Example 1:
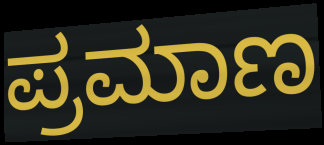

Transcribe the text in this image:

ಪ್ರಮಾಣ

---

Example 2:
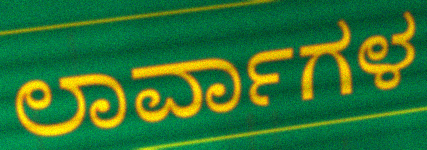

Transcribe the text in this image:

ಲಾರ್ವಾಗಳ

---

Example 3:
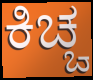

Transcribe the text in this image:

ಕಿಚ್ಚ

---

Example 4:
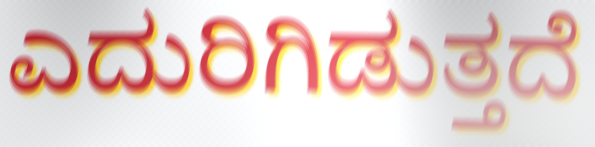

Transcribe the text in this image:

ಎದುರಿಗಿಡುತ್ತದೆ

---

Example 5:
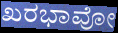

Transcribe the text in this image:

ಖರಭಾವೋ